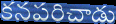
కనపరిచాడు